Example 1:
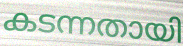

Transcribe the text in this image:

കടന്നതായി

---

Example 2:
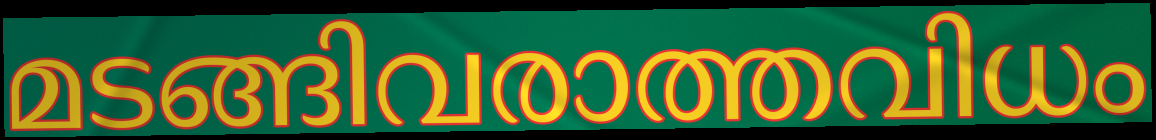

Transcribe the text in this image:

മടങ്ങിവരാത്തവിധം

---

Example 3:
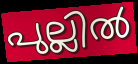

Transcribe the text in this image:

പുല്ലിൽ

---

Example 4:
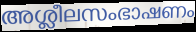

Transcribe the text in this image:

അശ്ലീലസംഭാഷണം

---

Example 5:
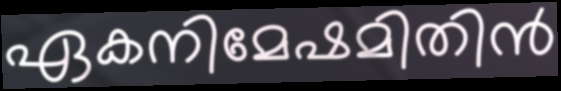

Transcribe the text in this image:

ഏകനിമേഷമിതിൻ